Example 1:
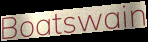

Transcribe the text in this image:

Boatswain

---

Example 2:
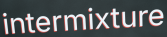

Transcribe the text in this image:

intermixture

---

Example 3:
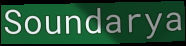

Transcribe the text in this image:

Soundarya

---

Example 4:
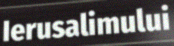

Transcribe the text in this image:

Ierusalimului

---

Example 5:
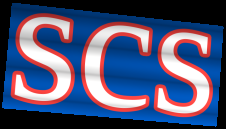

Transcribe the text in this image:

scs